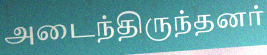
அடைந்திருந்தனர்